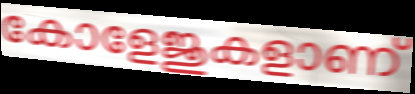
കോളേജുകളാണ്